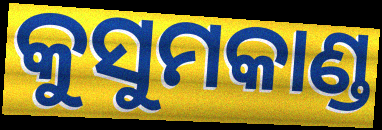
କୁସୁମକାଣ୍ଡ